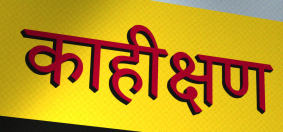
काहीक्षण